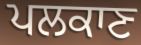
ਪਲਕਾਣ